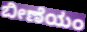
ಬೀಣೆಯಂ